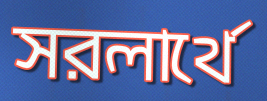
সরলার্থে